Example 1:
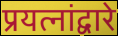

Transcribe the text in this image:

प्रयत्नांद्वारे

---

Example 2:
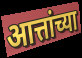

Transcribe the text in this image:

आत्तांच्या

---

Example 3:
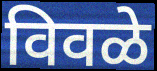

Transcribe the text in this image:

विवळे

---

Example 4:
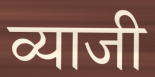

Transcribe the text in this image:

व्याजी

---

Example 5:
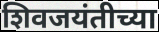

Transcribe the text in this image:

शिवजयंतीच्या